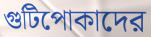
গুটিপোকাদের